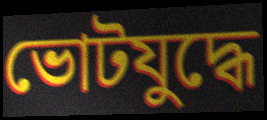
ভোটযুদ্ধে